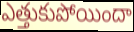
ఎత్తుకుపోయిందా